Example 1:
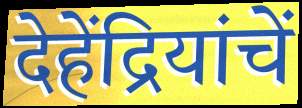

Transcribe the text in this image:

देहेंद्रियांचें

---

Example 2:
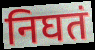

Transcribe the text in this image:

निघतं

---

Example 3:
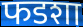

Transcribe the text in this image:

फडशा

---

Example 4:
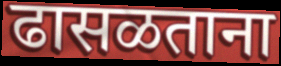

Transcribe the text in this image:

ढासळताना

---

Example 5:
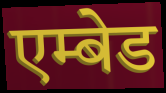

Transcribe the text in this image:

एम्बेड